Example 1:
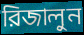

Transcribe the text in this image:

রিজালুন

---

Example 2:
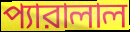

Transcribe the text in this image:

প্যারালাল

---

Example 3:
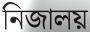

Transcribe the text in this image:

নিজালয়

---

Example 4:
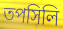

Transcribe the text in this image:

তপসিলি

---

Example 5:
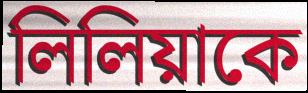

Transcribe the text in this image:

লিলিয়াকে